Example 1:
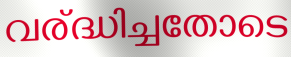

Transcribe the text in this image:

വര്ദ്ധിച്ചതോടെ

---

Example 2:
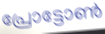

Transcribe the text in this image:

പ്രോട്ടോൺ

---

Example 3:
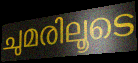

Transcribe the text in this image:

ചുമരിലൂടെ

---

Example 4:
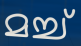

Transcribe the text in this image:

മച്ച്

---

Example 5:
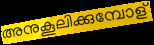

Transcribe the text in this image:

അനുകൂലിക്കുമ്പോള്